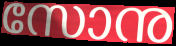
സോനു